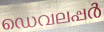
ഡെവലപ്പർ